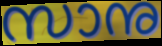
സാനു